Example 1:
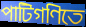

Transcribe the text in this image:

পাটিগণিতে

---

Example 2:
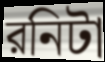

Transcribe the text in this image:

রনিটা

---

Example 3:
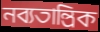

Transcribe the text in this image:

নব্যতান্ত্রিক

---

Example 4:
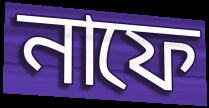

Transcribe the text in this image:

নাফে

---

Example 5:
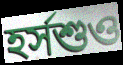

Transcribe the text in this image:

হর্সশুও